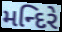
મન્દિરે